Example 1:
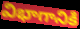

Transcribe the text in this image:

విభాగానికి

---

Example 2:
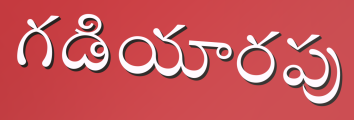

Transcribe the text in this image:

గడియారపు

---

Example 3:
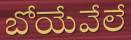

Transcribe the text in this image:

బోయేవేలే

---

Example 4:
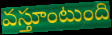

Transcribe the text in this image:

వస్తూంటుంది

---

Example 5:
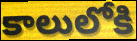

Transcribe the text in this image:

కాలులోకి